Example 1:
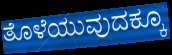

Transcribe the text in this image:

ತೊಳೆಯುವುದಕ್ಕೂ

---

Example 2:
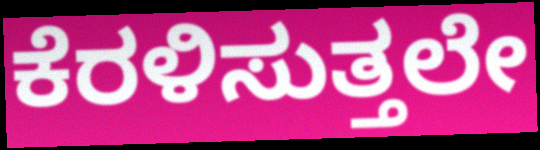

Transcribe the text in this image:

ಕೆರಳಿಸುತ್ತಲೇ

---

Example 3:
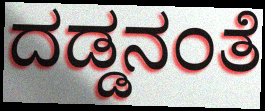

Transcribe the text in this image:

ದಡ್ಡನಂತೆ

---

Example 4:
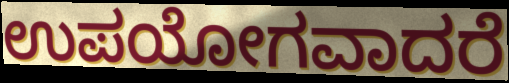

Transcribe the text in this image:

ಉಪಯೋಗವಾದರೆ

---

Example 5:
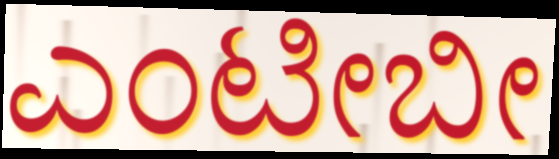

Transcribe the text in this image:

ಎಂಟೀಬೀ